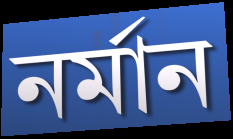
নর্মান